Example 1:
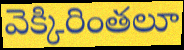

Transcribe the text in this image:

వెక్కిరింతలూ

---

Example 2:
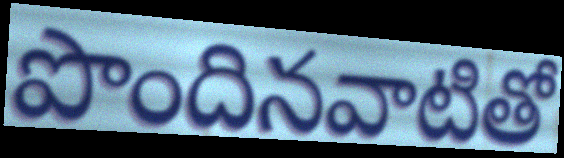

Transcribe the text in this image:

పొందినవాటితో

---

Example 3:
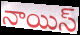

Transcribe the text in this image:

నాయిస్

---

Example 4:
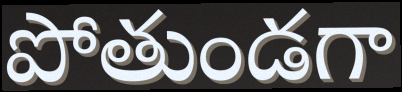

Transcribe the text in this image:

పోతుండగా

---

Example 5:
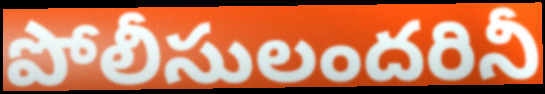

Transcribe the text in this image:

పోలీసులందరినీ